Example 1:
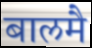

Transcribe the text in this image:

बालमै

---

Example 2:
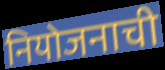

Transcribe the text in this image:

नियोजनाची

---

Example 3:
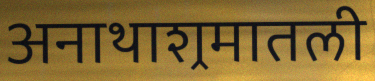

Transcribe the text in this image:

अनाथाश्रमातली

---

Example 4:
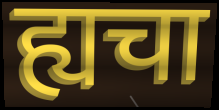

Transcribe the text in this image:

ह्यचा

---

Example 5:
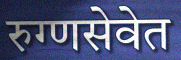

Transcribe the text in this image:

रुग्णसेवेत